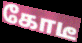
கோடீ